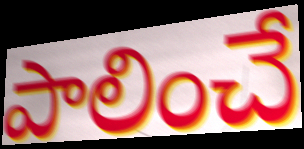
పాలించే